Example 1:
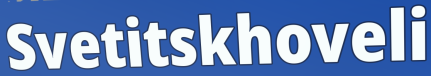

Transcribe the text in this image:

Svetitskhoveli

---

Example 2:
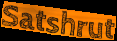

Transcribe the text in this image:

Satshrut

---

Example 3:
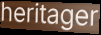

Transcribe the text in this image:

heritager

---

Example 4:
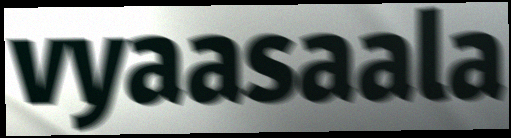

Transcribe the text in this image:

vyaasaala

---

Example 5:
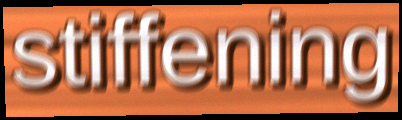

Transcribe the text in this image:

stiffening